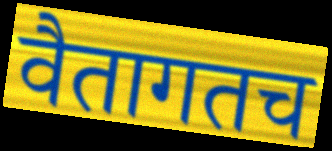
वैतागतच